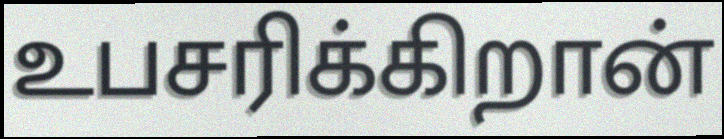
உபசரிக்கிறான்